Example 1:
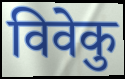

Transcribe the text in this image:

विवेकु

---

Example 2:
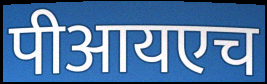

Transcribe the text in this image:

पीआयएच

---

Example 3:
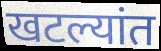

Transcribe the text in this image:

खटल्यांत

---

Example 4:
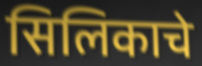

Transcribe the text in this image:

सिलिकाचे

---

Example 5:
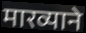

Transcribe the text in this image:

मारव्याने